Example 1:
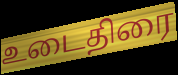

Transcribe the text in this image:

உடைதிரை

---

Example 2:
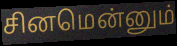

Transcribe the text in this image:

சினமென்னும்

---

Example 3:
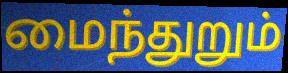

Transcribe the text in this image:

மைந்துறும்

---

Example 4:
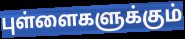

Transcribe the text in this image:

புள்ளைகளுக்கும்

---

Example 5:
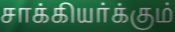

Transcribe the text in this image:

சாக்கியர்க்கும்